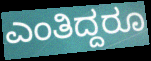
ಎಂತಿದ್ದರೂ